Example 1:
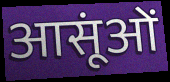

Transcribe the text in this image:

आसूंओं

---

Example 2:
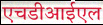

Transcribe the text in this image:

एचडीआईएल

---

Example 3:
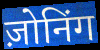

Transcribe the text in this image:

ज़ोनिंग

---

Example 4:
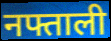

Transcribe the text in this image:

नफ्ताली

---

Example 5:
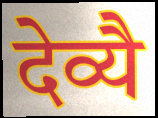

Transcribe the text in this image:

देव्यै